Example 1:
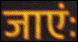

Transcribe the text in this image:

जाएंः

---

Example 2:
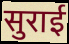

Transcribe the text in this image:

सुराई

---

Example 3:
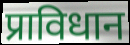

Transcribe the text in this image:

प्राविधान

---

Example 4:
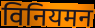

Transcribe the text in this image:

विनियमन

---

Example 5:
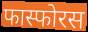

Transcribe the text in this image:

फास्फोरस